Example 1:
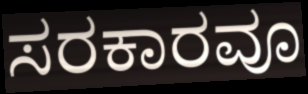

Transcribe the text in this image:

ಸರಕಾರವೂ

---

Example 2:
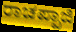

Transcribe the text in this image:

ರಾಚಪ್ಪಾಜಿ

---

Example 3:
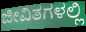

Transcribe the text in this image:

ಜೀವಿತಗಳಲ್ಲಿ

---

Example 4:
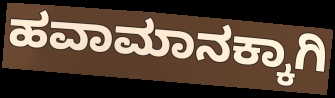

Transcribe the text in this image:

ಹವಾಮಾನಕ್ಕಾಗಿ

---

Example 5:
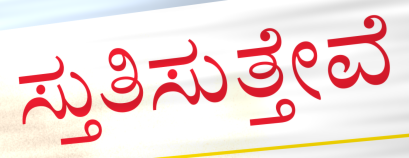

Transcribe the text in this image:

ಸ್ತುತಿಸುತ್ತೇವೆ